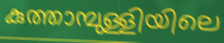
കുത്താമ്പുള്ളിയിലെ